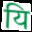
यि